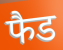
फैड